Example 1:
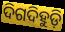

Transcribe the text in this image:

ଦିଗଦିହୁଡ଼ି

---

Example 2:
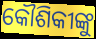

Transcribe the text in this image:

କୌଶିକୀଙ୍କୁ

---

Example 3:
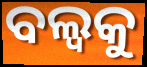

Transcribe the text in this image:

ବଲ୍ବକୁ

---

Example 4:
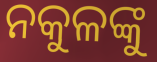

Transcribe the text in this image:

ନକୁଳଙ୍କୁ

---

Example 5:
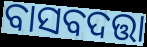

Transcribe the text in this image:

ବାସବଦତ୍ତା